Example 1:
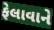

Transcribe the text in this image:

ફેલાવાને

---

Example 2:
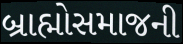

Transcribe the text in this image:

બ્રાહ્મોસમાજની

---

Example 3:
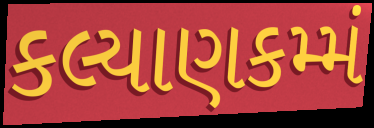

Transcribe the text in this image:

કલ્યાણકમ્મં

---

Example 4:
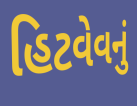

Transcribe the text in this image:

હિટવેવનું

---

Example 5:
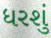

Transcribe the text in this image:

ધરશું